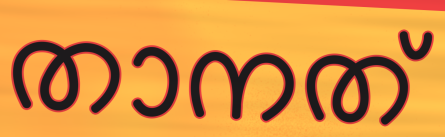
താനത്